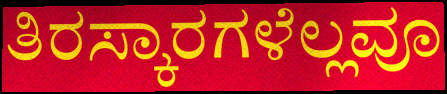
ತಿರಸ್ಕಾರಗಳೆಲ್ಲವೂ